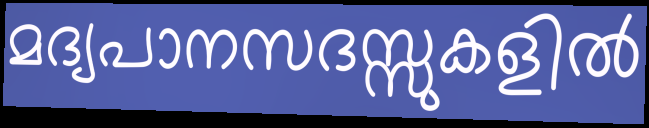
മദ്യപാനസദസ്സുകളിൽ